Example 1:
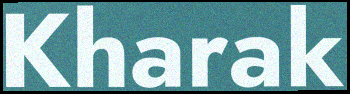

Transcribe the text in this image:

Kharak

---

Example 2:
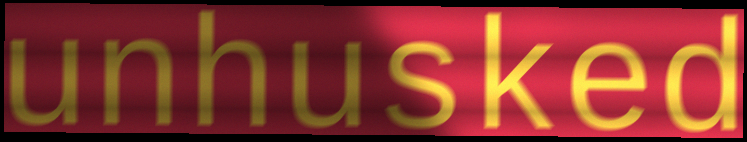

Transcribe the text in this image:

unhusked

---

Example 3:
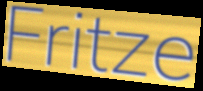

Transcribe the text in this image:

Fritze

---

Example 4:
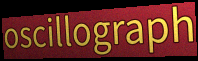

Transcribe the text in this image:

oscillograph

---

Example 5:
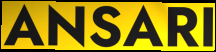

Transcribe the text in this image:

ANSARI